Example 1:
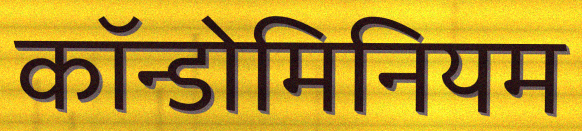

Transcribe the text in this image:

कॉन्डोमिनियम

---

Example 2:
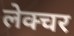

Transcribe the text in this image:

लेक्चर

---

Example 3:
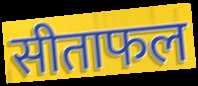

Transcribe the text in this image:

सीताफल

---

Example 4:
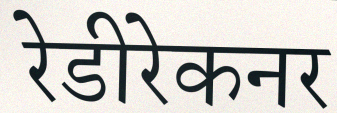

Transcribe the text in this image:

रेडीरेकनर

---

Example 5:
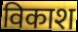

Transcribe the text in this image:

विकाश